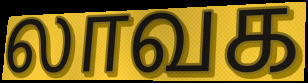
லாவக